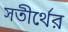
সতীর্থের